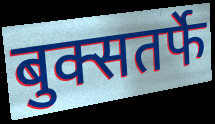
बुक्सतर्फे